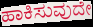
ಹಾಕಿಸುವುದೇ